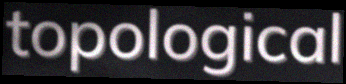
topological